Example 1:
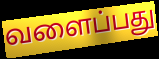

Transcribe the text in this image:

வளைப்பது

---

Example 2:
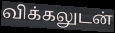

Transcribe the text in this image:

விக்கலுடன்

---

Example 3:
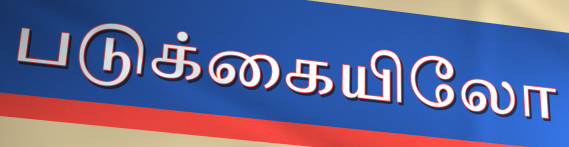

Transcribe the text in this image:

படுக்கையிலோ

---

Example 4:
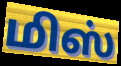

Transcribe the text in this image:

மிஸ்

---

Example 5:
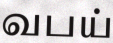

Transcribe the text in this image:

வபய்